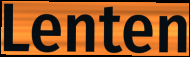
Lenten